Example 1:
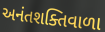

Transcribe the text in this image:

અનંતશક્તિવાળા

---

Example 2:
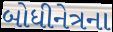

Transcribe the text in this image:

બોધીનેત્રના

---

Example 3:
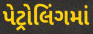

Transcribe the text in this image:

પેટ્રોલિંગમાં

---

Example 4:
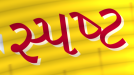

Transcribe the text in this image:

સ્પષ્‍ટ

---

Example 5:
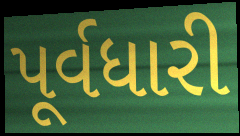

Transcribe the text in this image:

પૂર્વધારી